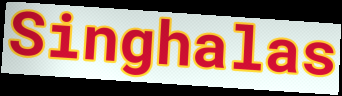
Singhalas